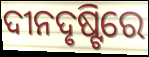
ଦୀନଦୃଷ୍ଟିରେ